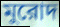
মুরোদ